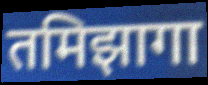
तमिझागा